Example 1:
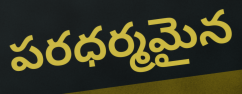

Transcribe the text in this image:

పరధర్మమైన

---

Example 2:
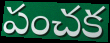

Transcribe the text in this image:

పంచక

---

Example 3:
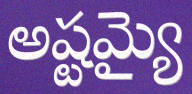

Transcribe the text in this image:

అష్టమ్యై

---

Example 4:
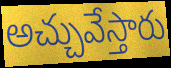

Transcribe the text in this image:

అచ్చువేస్తారు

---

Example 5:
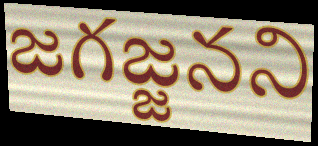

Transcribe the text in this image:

జగజ్జనని